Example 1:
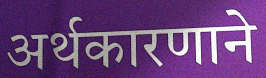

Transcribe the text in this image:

अर्थकारणाने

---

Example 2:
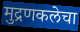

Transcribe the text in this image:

मुद्रणकलेचा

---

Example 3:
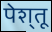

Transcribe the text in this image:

पेश्तू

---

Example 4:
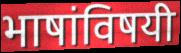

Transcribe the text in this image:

भाषांविषयी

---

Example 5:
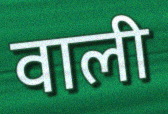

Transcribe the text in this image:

वाली